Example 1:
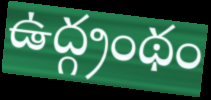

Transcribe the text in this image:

ఉద్గ్రంథం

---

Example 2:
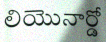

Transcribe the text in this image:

లియొనార్డో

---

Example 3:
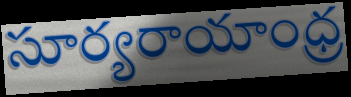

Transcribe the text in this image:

సూర్యరాయాంధ్ర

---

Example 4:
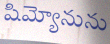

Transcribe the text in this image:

షిమ్యోనును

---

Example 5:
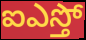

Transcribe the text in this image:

ఐఎస్తో